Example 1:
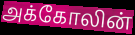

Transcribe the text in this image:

அக்கோலின்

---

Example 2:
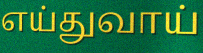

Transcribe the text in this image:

எய்துவாய்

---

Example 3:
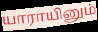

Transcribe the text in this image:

யாராயினும்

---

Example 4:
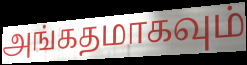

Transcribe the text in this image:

அங்கதமாகவும்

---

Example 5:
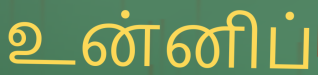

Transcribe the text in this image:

உன்னிப்